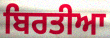
ਬਿਰਤੀਆ